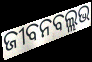
ଜୀବନବଲ୍ଲଭ